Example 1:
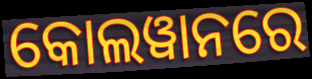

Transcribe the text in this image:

କୋଲୱାନରେ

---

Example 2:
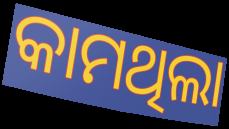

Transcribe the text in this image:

କାମଥିଲା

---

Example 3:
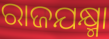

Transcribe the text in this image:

ରାଜଯକ୍ଷ୍ମା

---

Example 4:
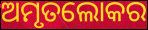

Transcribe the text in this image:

ଅମୃତଲୋକର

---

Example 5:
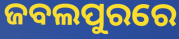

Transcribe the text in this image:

ଜବଲପୁରରେ